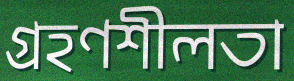
গ্রহণশীলতা